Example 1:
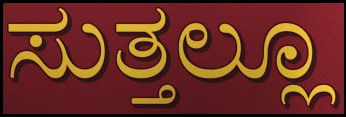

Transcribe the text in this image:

ಸುತ್ತಲ್ಲೂ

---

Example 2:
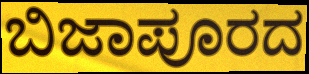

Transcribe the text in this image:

ಬಿಜಾಪೂರದ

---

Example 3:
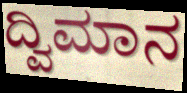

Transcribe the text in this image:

ದ್ವಿಮಾನ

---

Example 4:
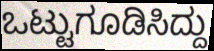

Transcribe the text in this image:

ಒಟ್ಟುಗೂಡಿಸಿದ್ದು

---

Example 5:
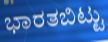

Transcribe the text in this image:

ಭಾರತಬಿಟ್ಟು